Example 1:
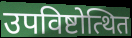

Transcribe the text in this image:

उपविष्टोत्थित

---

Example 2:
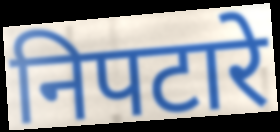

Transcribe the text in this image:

निपटारे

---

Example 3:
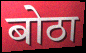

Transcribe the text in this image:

बोठा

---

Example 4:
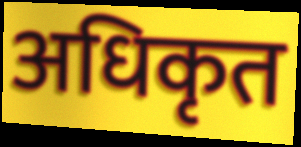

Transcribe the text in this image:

अधिकृत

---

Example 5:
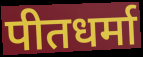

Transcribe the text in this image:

पीतधर्मा